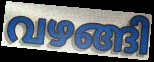
വഴങ്ങി